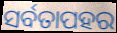
ସର୍ବତାପହର